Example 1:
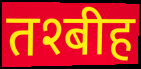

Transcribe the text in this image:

तश्बीह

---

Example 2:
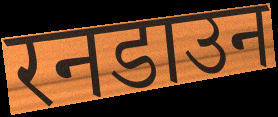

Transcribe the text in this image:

रनडाउन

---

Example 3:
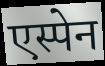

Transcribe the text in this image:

एस्पेन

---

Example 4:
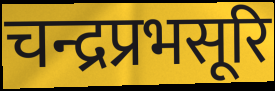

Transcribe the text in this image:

चन्द्रप्रभसूरि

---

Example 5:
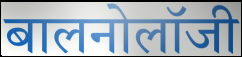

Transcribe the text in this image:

बालनोलॉजी